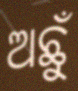
ଅଛୁଁ